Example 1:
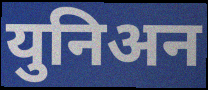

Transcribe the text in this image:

युनिअन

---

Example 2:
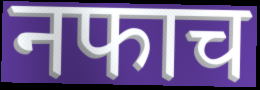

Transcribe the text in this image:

नफाच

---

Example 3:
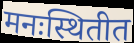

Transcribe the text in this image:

मनःस्थितीत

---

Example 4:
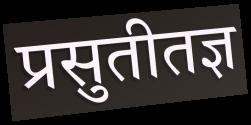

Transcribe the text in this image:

प्रसुतीतज्ञ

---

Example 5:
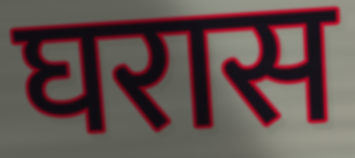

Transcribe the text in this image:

घरास